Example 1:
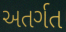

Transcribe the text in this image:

અતર્ગત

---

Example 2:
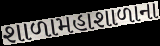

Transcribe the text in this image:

શાળામહાશાળાના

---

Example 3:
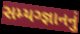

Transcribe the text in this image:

સમ્યગ્જ્ઞાનનું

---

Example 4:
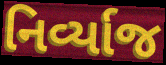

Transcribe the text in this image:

નિર્વ્યાજ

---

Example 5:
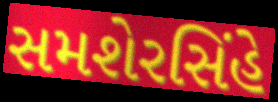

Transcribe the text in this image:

સમશેરસિંહે